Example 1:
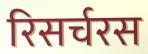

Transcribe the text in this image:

रिसर्चरस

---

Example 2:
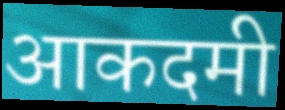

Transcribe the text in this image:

आकदमी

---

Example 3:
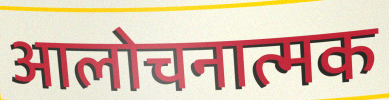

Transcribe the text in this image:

आलोचनात्मक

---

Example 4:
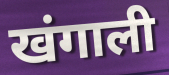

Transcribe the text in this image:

खंगाली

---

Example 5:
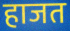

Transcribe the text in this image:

हाजत